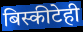
बिस्कीटेही